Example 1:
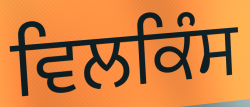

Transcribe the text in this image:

ਵਿਲਕਿੰਸ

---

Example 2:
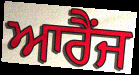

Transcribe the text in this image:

ਆਰੈਂਜ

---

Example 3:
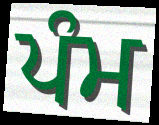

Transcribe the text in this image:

ਪੰਮ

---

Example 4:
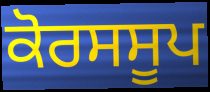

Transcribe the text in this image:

ਕੋਰਸਸੂਪ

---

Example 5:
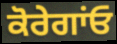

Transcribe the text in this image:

ਕੋਰੇਗਾਂਓ